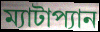
ম্যাটাপ্যান